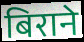
बिराने